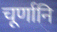
चूर्णानि